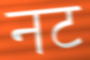
नट